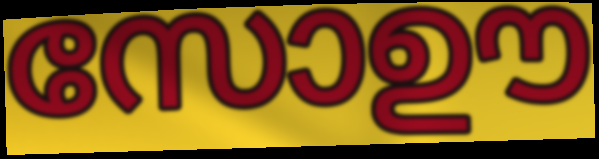
സോഊ